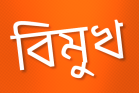
বিমুখ